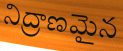
నిద్రాణమైన